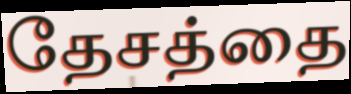
தேசத்தை